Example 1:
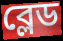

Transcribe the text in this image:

ব্লেড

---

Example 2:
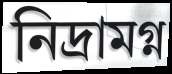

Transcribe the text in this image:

নিদ্ৰামগ্ন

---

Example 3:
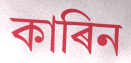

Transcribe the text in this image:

কাৰিন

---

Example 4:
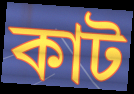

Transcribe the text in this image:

কাট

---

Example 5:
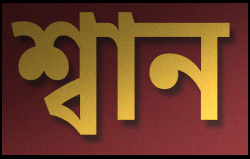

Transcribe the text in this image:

শ্বান